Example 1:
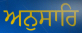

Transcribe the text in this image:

ਅਨੁਸਾਰਿ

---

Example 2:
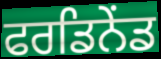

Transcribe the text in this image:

ਫਰਡਿਨੇਂਡ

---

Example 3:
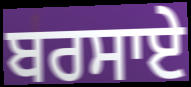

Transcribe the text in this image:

ਬਰਸਾਏ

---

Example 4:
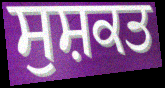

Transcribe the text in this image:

ਸੁਸ਼ਕਤ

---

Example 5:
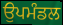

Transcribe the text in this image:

ਉਪਮੰਡਲ